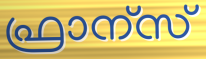
ഫ്രാന്സ്